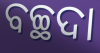
ବଚ୍ଛଦା